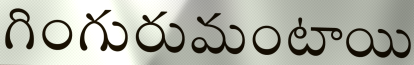
గింగురుమంటాయి